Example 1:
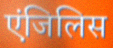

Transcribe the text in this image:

एंजिलिस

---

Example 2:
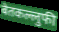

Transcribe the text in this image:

बेतकल्लुफी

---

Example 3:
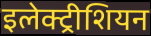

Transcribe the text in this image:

इलेक्ट्रीशियन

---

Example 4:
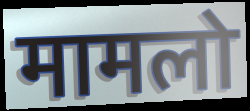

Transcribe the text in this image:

मामलो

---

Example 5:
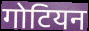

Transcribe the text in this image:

गोटियन